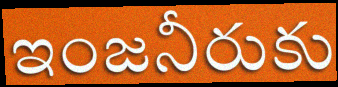
ఇంజనీరుకు